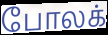
போலக்